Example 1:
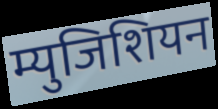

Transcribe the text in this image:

म्‍युजिशियन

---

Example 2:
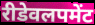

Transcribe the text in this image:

रीडेवलपमेंट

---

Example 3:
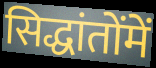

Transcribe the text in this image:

सिद्धांतोंमें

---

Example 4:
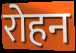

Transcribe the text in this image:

रोहन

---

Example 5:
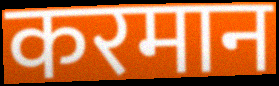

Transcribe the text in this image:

करमान